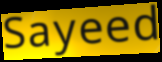
Sayeed